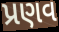
પ્રણવ